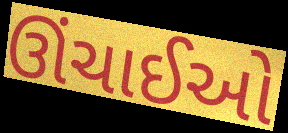
ઊંચાઈઓ